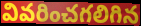
వివరించగలిగిన